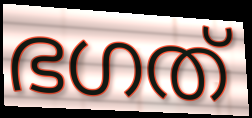
ഭഗത്